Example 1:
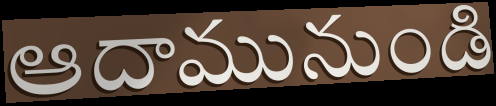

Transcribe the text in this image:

ఆదామునుండి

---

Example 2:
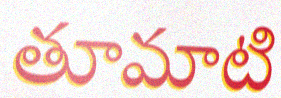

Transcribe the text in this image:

తూమాటి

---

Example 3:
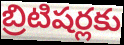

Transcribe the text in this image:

బ్రిటిషర్లకు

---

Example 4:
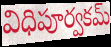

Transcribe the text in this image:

విధిపూర్వకమ్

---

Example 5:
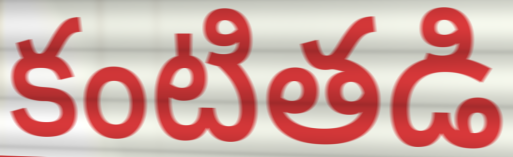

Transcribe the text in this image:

కంటితడి